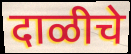
दाळीचे